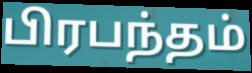
பிரபந்தம்